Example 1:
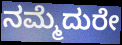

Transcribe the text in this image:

ನಮ್ಮೆದುರೇ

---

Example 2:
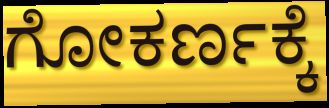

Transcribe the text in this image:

ಗೋಕರ್ಣಕ್ಕೆ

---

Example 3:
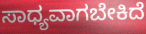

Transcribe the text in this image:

ಸಾಧ್ಯವಾಗಬೇಕಿದೆ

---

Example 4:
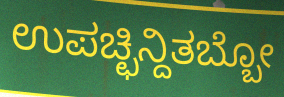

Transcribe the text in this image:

ಉಪಚ್ಛಿನ್ದಿತಬ್ಬೋ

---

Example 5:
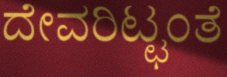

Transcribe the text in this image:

ದೇವರಿಟ್ಟಂತೆ